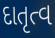
દાતૃત્વ